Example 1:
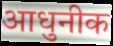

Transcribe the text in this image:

आधुनीक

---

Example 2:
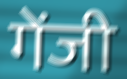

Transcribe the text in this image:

गेंजी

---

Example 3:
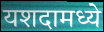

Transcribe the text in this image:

यशदामध्ये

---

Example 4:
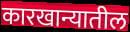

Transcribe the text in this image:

कारखान्यातील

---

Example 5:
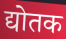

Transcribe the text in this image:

द्योतक